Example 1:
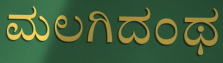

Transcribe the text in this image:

ಮಲಗಿದಂಥ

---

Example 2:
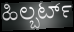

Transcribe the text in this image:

ಹಿಲ್ಬರ್ಟ್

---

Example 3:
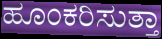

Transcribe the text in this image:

ಹೂಂಕರಿಸುತ್ತಾ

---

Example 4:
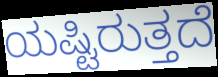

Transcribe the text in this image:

ಯಷ್ಟಿರುತ್ತದೆ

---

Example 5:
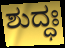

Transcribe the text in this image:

ಶುದ್ಧಃ